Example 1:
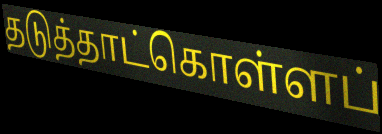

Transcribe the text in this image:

தடுத்தாட்கொள்ளப்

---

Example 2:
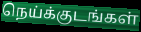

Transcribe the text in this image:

நெய்க்குடங்கள்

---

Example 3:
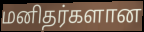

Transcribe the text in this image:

மனிதர்களான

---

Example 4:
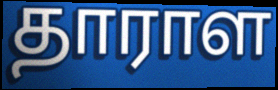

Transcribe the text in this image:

தாராள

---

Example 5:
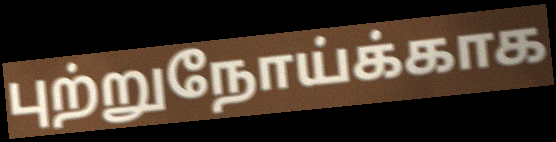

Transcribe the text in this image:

புற்றுநோய்க்காக